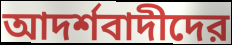
আদর্শবাদীদের